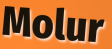
Molur